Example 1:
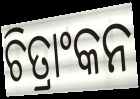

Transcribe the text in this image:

ଚିତ୍ରାଂକନ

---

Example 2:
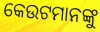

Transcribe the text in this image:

କେଉଟମାନଙ୍କୁ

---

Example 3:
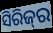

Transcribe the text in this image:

ସିରିଜ୍‌ର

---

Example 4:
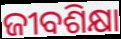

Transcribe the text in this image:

ଜୀବଶିକ୍ଷା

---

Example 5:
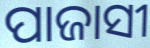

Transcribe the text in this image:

ପାଜାସୀ